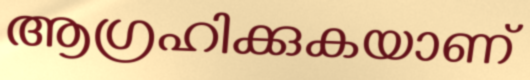
ആഗ്രഹിക്കുകയാണ്